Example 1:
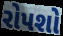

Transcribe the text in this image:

રોપશો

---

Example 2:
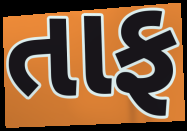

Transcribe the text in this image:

તાફ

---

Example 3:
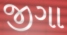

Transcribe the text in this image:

જીગા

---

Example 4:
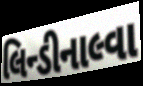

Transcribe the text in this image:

લિન્ડીનાલ્વા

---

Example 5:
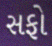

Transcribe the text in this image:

સફો